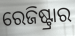
ରେଜିଷ୍ଟ୍ରାର